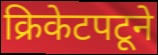
क्रिकेटपटूने